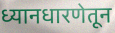
ध्यानधारणेतून